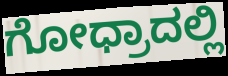
ಗೋಧ್ರಾದಲ್ಲಿ